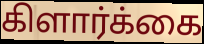
கிளார்க்கை